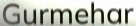
Gurmehar